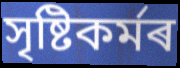
সৃষ্টিকৰ্মৰ